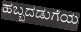
ಹಬ್ಬದಡುಗೆಯ